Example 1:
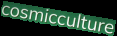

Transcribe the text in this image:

cosmicculture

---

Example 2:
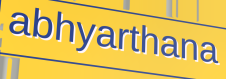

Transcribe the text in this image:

abhyarthana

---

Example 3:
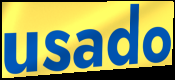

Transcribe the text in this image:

usado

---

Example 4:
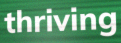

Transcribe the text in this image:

thriving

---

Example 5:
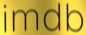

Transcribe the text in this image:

imdb